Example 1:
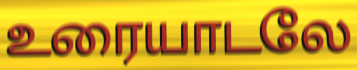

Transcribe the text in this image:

உரையாடலே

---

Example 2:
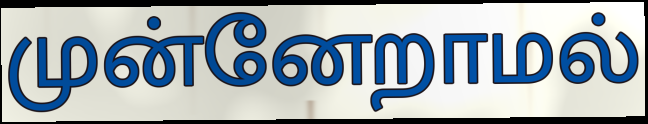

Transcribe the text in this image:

முன்னேறாமல்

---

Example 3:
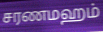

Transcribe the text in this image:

சரணமஹம்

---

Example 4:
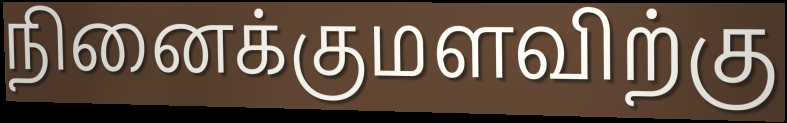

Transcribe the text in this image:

நினைக்குமளவிற்கு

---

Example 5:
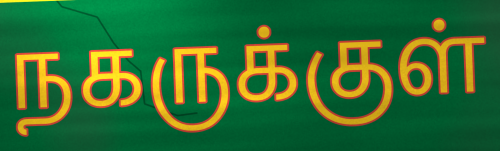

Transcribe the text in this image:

நகருக்குள்